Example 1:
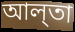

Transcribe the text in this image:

আল্‌তা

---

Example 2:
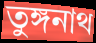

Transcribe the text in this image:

তুঙ্গনাথ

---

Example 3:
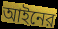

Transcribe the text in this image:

আইনের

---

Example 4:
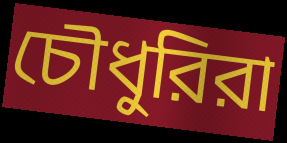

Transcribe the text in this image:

চৌধুরিরা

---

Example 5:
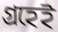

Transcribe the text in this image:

গ্রহেই